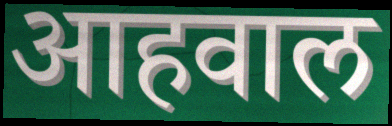
आहवाल